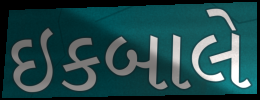
ઇકબાલે